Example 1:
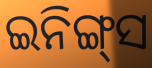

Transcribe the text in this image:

ଇନିଙ୍ଗ୍‌ସ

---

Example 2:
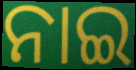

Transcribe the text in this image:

ନାଇ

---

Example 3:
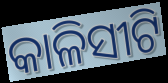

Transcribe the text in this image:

କାଳିସୀଟି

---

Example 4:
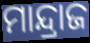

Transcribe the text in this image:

ମାନ୍ଦ୍ରାଜ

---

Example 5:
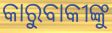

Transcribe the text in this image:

କାରୁବାକୀଙ୍କୁ